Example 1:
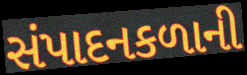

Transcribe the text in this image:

સંપાદનકળાની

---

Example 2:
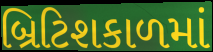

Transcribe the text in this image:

બ્રિટિશકાળમાં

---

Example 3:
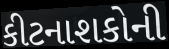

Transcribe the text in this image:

કીટનાશકોની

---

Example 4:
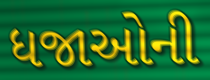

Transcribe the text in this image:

ધજાઓની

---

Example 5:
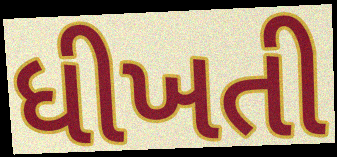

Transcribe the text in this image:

ધીખતી